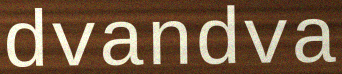
dvandva